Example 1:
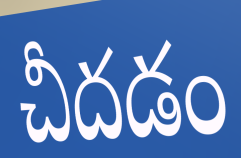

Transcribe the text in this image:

చీదడం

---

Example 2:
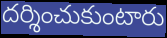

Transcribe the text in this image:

దర్శించుకుంటారు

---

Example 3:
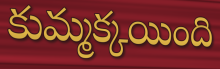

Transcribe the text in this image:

కుమ్మక్కయింది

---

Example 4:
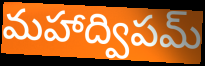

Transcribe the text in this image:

మహాద్విపమ్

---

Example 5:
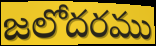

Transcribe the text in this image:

జలోదరము